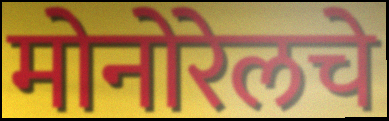
मोनोरेलचे